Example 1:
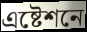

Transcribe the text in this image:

এষ্টেশনে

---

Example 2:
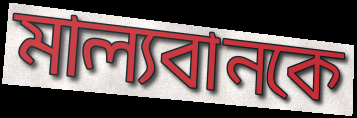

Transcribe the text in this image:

মাল্যবানকে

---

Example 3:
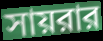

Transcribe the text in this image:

সায়রার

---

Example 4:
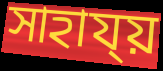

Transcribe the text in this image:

সাহায্য়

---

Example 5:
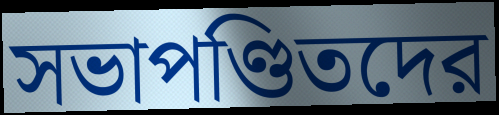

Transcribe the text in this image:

সভাপণ্ডিতদের